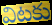
విటకు